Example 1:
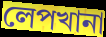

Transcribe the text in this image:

লেপখানা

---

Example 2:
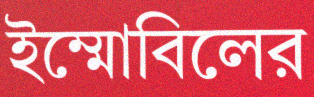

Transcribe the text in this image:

ইম্মোবিলের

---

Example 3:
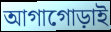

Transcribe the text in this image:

আগাগোড়াই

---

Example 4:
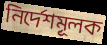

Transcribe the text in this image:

নির্দেশমূলক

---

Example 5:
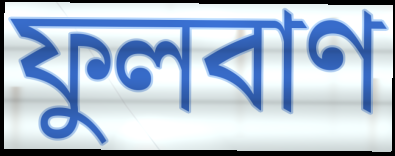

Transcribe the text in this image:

ফুলবাণ